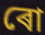
ৰো